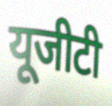
यूजीटी